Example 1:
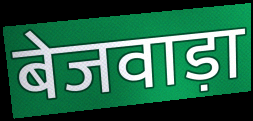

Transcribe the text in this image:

बेजवाड़ा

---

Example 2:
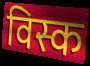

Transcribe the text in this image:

विस्क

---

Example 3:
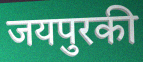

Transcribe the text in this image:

जयपुरकी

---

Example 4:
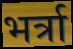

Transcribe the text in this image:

भर्त्रा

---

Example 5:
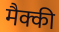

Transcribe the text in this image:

मैक्की